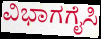
ವಿಭಾಗಗೈಸಿ